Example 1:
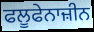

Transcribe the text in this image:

ਫਲੂਫੇਨਾਜ਼ੀਨ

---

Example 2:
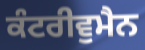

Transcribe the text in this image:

ਕੰਟਰੀਵੁਮੈਨ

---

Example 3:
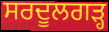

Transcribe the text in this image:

ਸਰਦੂਲਗੜ੍ਹ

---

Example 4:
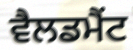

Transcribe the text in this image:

ਵੈਲਡਮੈਂਟ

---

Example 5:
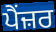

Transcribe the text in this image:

ਪੈਂਜ਼ਰ